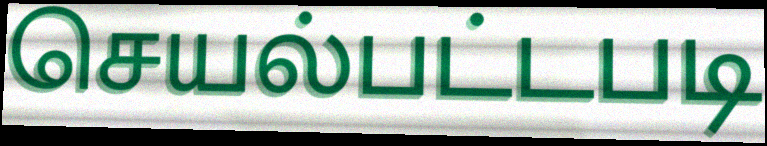
செயல்பட்டபடி